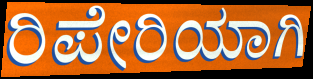
ರಿಪೇರಿಯಾಗಿ